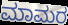
ಮಾಮರ